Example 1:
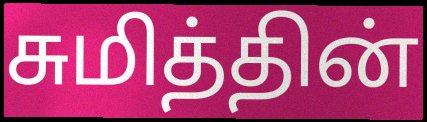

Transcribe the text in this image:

சுமித்தின்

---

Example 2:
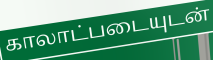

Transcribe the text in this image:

காலாட்படையுடன்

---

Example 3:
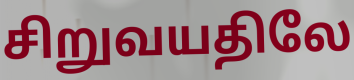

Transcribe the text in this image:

சிறுவயதிலே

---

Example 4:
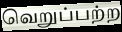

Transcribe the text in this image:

வெறுப்பற்ற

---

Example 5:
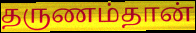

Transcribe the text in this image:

தருணம்தான்